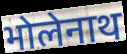
भोलेनाथ